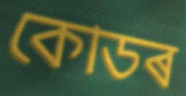
কোডৰ